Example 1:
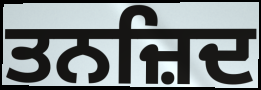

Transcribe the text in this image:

ਤਨਜ਼ਿਦ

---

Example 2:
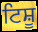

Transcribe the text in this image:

ਟਿਸ਼ੂ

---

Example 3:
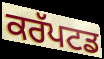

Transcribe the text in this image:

ਕਰੱਪਟਡ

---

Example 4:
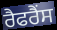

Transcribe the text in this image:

ਰੈਫਰੈਂਸ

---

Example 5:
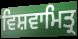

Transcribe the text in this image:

ਵਿਸ਼ਵਾਮਿਤ੍ਰ